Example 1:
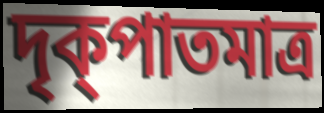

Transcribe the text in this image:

দৃক্পাতমাত্র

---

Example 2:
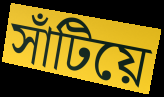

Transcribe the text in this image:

সাঁটিয়ে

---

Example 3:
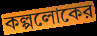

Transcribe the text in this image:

কল্পলোকের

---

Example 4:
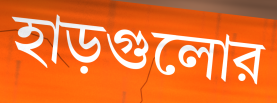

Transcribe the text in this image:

হাড়গুলোর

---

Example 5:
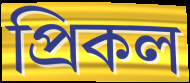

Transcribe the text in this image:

প্রিকল